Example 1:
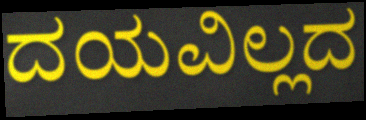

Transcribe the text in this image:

ದಯವಿಲ್ಲದ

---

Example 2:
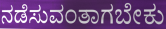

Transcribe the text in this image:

ನಡೆಸುವಂತಾಗಬೇಕು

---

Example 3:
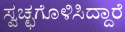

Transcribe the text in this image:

ಸ್ವಚ್ಛಗೊಳಿಸಿದ್ದಾರೆ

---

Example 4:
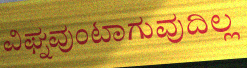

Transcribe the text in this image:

ವಿಘ್ನವುಂಟಾಗುವುದಿಲ್ಲ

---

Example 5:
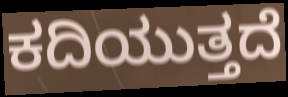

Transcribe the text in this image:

ಕದಿಯುತ್ತದೆ